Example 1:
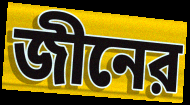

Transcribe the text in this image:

জীনের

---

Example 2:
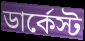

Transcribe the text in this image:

ডার্কেস্ট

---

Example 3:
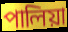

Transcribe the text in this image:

পালিয়া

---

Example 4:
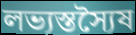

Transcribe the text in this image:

লভ্যস্তস্যৈষ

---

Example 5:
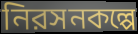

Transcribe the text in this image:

নিরসনকল্পে